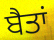
ਬੈਤਾਂ